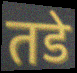
तडे